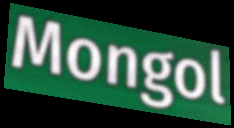
Mongol